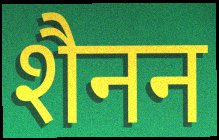
शैनन